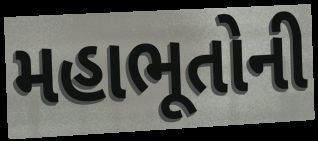
મહાભૂતોની